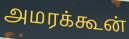
அமரக்கூன்